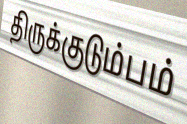
திருக்குடும்பம்